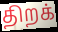
திறக்